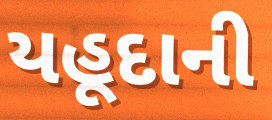
યહૂદાની